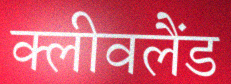
क्‍लीवलैंड